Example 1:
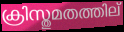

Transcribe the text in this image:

ക്രിസ്തുമതത്തില്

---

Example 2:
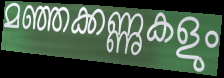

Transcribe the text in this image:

മഞ്ഞക്കണ്ണുകളും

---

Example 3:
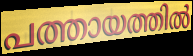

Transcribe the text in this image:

പത്തായത്തിൽ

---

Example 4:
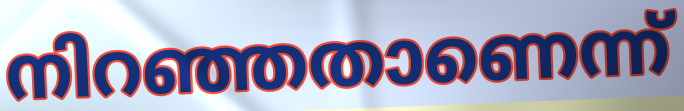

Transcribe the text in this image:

നിറഞ്ഞതാണെന്ന്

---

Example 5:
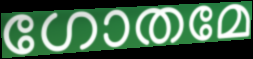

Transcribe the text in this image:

ഗോതമേ